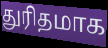
துரிதமாக